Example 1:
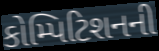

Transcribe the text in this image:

કોમ્પિટિશનની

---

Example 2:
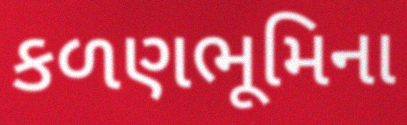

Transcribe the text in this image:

કળણભૂમિના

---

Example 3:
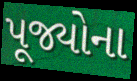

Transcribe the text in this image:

પૂજ્યોના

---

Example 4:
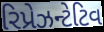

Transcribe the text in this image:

રિપ્રેઝન્ટેટિવ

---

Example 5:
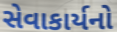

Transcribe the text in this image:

સેવાકાર્યનો